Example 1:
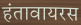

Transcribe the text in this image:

हंतावायरस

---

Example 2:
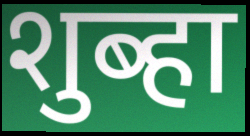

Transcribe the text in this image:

शुब्हा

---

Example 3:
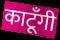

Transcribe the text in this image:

काटूँगी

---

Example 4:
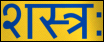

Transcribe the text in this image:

शस्त्रः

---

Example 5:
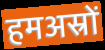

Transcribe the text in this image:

हमअस्रों